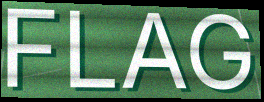
FLAG